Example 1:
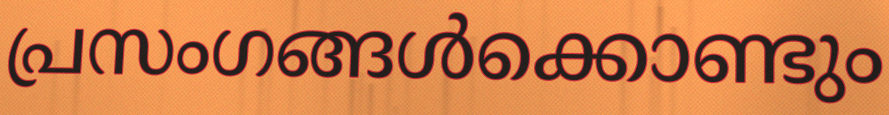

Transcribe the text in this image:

പ്രസംഗങ്ങൾക്കൊണ്ടും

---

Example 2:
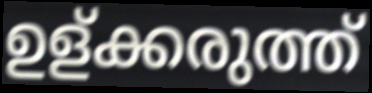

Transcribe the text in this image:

ഉള്ക്കരുത്ത്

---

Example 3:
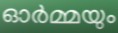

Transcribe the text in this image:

ഓർമ്മയും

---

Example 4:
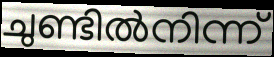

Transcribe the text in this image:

ചുണ്ടിൽനിന്ന്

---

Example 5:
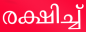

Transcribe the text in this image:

രക്ഷിച്ച്